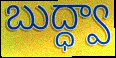
బుద్ధ్వా